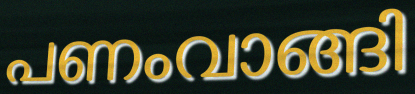
പണംവാങ്ങി